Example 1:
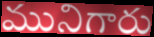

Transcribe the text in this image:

మునిగారు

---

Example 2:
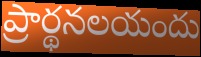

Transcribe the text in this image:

ప్రార్థనలయందు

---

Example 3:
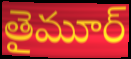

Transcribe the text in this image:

తైమూర్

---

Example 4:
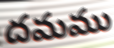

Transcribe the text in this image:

దమము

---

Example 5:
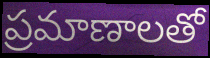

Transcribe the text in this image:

ప్రమాణాలతో